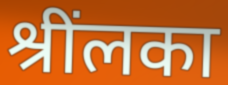
श्रींलका